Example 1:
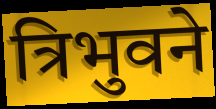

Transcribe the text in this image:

त्रिभुवने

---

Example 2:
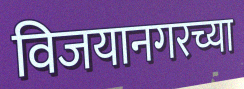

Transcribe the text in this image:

विजयानगरच्या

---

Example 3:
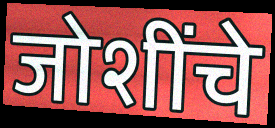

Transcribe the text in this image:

जोशींचे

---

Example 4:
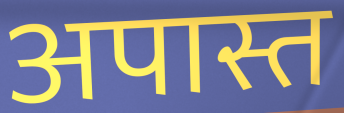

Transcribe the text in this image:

अपास्त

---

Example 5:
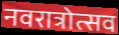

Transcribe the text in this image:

नवरात्रोत्सव